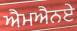
ਐਮਐਨਏ